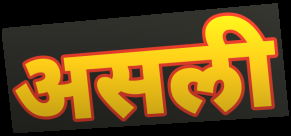
असली